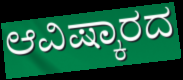
ಆವಿಷ್ಕಾರದ